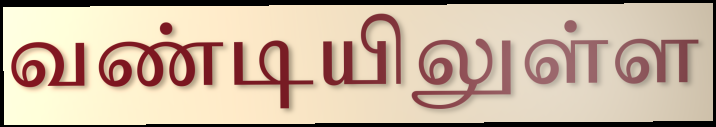
வண்டியிலுள்ள